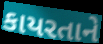
કાયરતાને